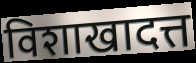
विशाखादत्त